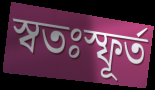
স্বতঃস্ফূর্ত